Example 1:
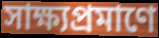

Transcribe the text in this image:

সাক্ষ্যপ্রমাণে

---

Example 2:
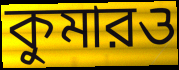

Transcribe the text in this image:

কুমারও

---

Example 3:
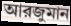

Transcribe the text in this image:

আরজুমান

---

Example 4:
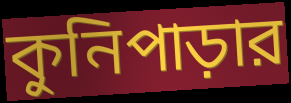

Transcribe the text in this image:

কুনিপাড়ার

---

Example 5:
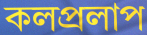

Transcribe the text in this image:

কলপ্রলাপ